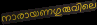
നാരായണഗുരുവിലെ